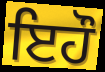
ਇਹੌ